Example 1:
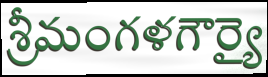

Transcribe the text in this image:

శ్రీమంగళగౌర్యై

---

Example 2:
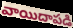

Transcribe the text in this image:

వాయిదాపడి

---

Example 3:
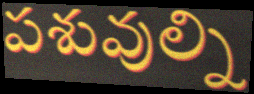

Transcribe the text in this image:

పశువుల్ని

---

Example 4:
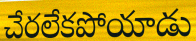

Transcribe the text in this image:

చేరలేకపోయాడు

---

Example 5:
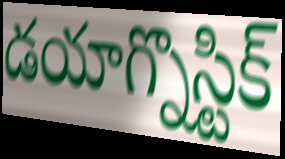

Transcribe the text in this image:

డయాగ్నొస్టిక్